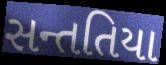
સન્તતિયા